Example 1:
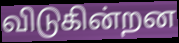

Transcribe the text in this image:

விடுகின்றன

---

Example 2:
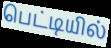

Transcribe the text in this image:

பெட்டியில்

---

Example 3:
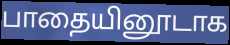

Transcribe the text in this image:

பாதையினூடாக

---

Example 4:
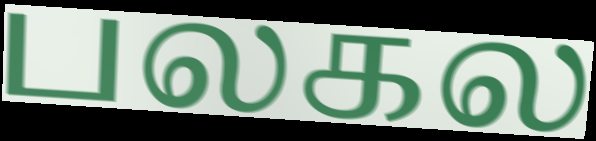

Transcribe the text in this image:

பலகல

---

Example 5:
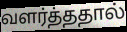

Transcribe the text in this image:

வளர்த்ததால்